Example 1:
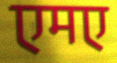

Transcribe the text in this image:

एमए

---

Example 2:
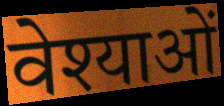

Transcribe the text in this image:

वेश्याओं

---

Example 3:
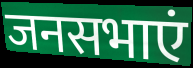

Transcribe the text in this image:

जनसभाएं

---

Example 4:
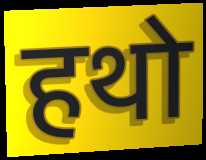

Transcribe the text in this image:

हथो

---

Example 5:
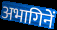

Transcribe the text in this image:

अभागिनें